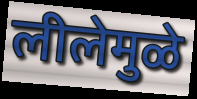
लीलेमुळे